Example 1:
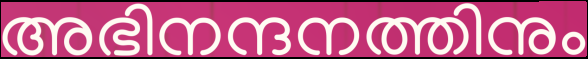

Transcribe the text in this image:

അഭിനന്ദനത്തിനും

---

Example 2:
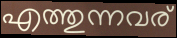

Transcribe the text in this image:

എത്തുന്നവര്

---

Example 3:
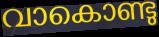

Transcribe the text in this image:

വാകൊണ്ടു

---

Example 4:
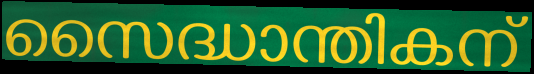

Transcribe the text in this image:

സൈദ്ധാന്തികന്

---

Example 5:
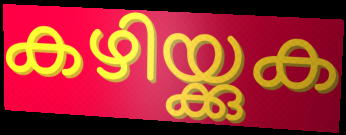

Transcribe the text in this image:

കഴിയ്ക്കുക